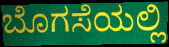
ಬೊಗಸೆಯಲ್ಲಿ